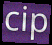
cip